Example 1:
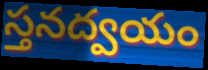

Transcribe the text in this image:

స్తనద్వయం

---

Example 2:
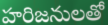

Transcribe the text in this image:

హరిజనులతో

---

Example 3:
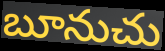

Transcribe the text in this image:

బూనుచు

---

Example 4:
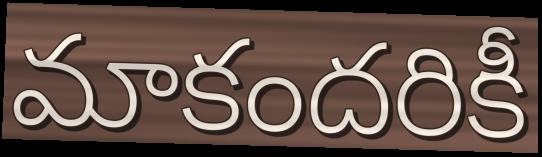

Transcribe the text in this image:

మాకందరికీ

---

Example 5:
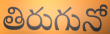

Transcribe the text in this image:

తిరుగునో